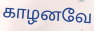
காழனவே